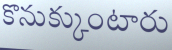
కొనుక్కుంటారు